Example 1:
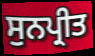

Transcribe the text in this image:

ਸੁਨਪ੍ਰੀਤ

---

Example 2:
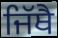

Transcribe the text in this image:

ਜਿੱਥੈ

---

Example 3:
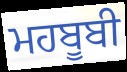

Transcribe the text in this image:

ਮਹਬੂਬੀ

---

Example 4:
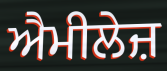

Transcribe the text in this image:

ਐਮੀਲੇਜ਼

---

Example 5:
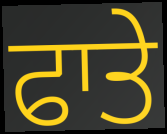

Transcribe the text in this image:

ਫਾਤੇ